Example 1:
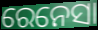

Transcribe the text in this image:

ରେନେସା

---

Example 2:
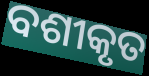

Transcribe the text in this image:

ବଶୀକୃତ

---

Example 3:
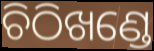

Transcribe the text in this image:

ଚିଠିଖଣ୍ଡେ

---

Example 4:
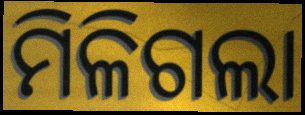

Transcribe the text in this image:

ମିଳିଗଲା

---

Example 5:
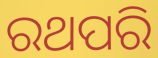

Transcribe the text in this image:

ରଥପରି